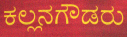
ಕಲ್ಲನಗೌಡರು